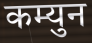
कम्युन